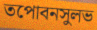
তপোবনসুলভ